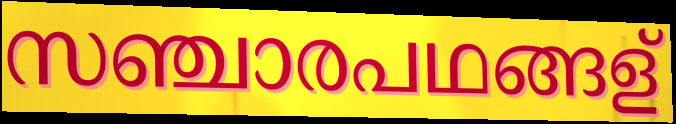
സഞ്ചാരപഥങ്ങള്